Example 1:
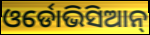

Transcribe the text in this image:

ଓର୍ଡୋଭିସିଆନ୍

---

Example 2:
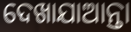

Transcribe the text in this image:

ଦେଖାଯାଆନ୍ତା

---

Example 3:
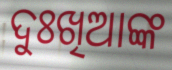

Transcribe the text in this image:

ଦୁଃଖିଆଙ୍କ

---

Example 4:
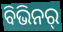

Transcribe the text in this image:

ବିଭିନର୍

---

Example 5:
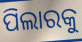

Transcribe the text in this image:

ପିଲାରକୁ